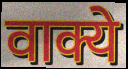
वाक्ये